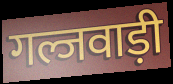
गल्जवाड़ी